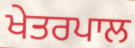
ਖੇਤਰਪਾਲ